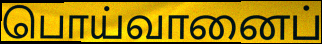
பொய்வானைப்